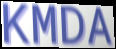
KMDA